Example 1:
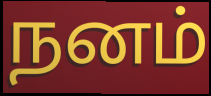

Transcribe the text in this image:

நனம்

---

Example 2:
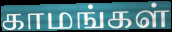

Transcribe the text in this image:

காமங்கள்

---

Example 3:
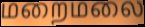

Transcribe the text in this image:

மறைமலை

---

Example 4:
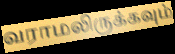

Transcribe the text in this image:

வராமலிருக்கவும்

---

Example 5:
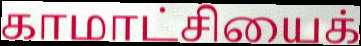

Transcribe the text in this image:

காமாட்சியைக்